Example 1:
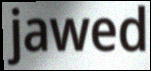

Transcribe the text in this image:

jawed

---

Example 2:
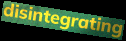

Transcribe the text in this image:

disintegrating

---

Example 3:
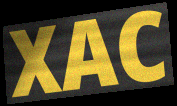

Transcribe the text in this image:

XAC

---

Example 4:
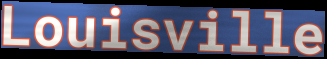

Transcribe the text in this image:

Louisville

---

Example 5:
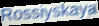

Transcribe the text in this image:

Rossiyskaya